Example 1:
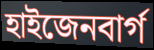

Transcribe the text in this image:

হাইজেনবার্গ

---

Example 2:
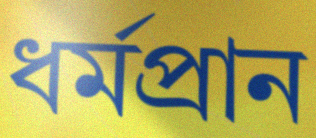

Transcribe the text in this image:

ধর্মপ্রান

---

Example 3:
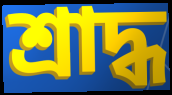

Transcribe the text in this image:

শ্রাদ্ধ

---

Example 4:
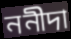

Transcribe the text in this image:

ননীদা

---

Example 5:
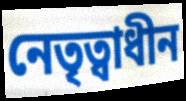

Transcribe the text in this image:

নেতৃত্বাধীন